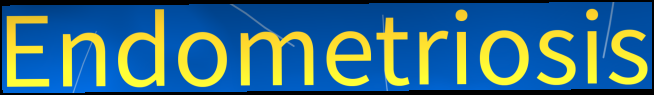
Endometriosis